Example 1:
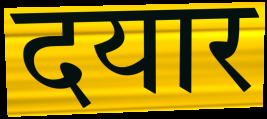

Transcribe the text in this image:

दयार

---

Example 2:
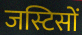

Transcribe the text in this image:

जस्टिसों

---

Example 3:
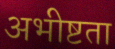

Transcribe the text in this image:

अभीष्टता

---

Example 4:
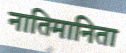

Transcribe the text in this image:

नातिमानिता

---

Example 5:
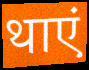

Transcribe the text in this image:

थाएं